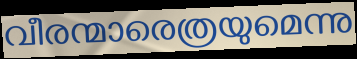
വീരന്മാരെത്രയുമെന്നു